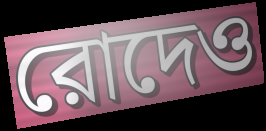
রোদেও